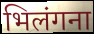
भिलंगना